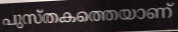
പുസ്തകത്തെയാണ്